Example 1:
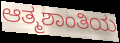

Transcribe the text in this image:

ಆತ್ಮಶಾಂತಿಯ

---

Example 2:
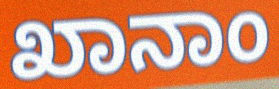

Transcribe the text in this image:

ಖಾನಾಂ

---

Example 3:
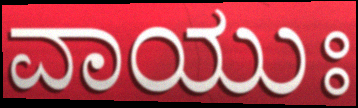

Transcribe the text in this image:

ವಾಯುಃ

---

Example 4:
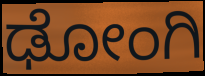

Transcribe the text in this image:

ಢೋಂಗಿ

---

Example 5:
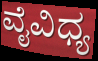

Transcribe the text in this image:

ವೈವಿಧ್ಯ